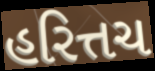
હરિત્તચ